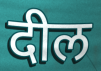
दील